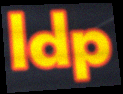
ldp